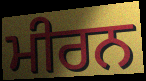
ਮੀਰਨ